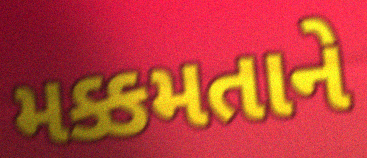
મક્કમતાને